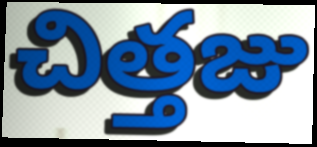
చిత్తజు